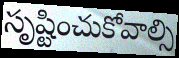
సృష్టించుకోవాల్సి